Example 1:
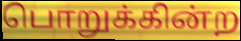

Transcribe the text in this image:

பொறுக்கின்ற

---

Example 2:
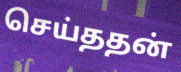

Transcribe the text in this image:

செய்ததன்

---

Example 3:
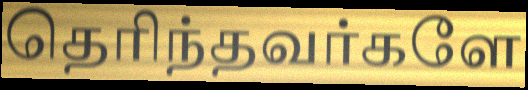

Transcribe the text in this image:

தெரிந்தவர்களே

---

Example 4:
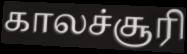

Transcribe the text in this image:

காலச்சூரி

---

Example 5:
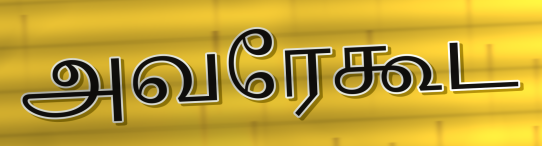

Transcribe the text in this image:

அவரேகூட